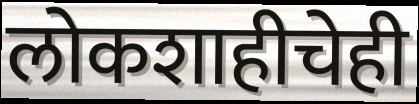
लोकशाहीचेही